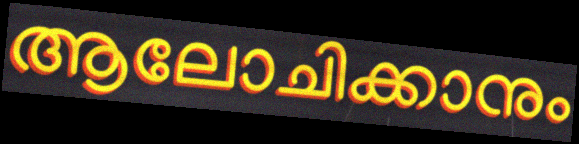
ആലോചിക്കാനും